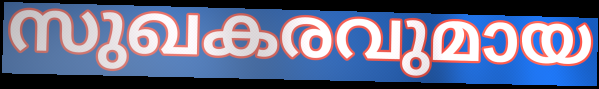
സുഖകരവുമായ